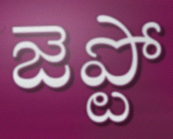
జెప్టో